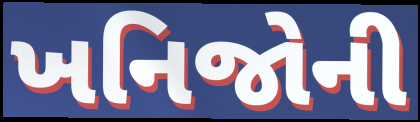
ખનિજોની